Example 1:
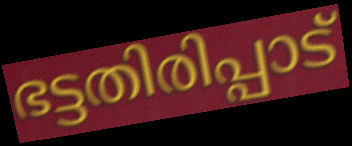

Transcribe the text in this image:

ഭട്ടതിരിപ്പാട്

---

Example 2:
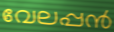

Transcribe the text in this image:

വേലപ്പൻ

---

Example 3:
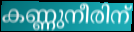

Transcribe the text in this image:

കണ്ണുനീരിന്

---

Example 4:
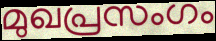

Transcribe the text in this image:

മുഖപ്രസംഗം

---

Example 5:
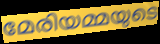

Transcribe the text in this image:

മേരിയമ്മയുടെ